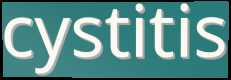
cystitis